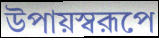
উপায়স্বরূপে